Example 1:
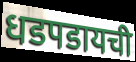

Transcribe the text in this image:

धडपडायची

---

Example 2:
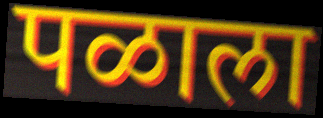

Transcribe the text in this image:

पळाला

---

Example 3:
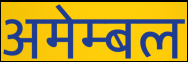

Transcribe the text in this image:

अमेम्बल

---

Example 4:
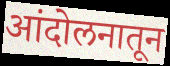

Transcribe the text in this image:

आंदोलनातून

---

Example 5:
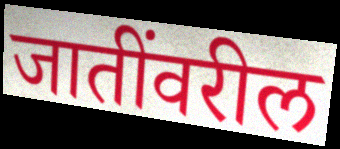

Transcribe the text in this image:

जातींवरील